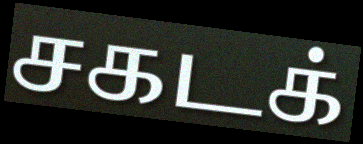
சகடக்